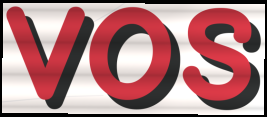
vos